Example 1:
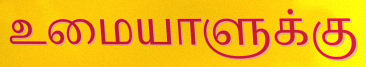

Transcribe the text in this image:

உமையாளுக்கு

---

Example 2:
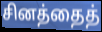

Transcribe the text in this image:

சினத்தைத்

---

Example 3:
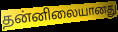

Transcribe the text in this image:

தன்னிலையானது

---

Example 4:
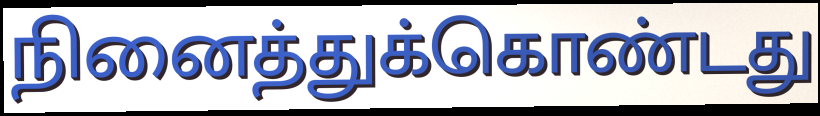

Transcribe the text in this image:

நினைத்துக்கொண்டது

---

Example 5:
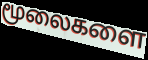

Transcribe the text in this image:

மூலைகளை